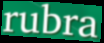
rubra